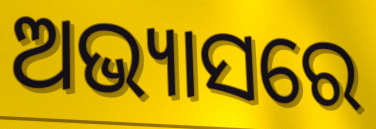
ଅଭ୍ୟାସରେ